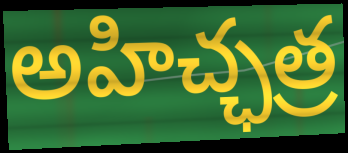
అహిచ్ఛత్ర